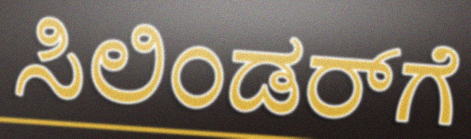
ಸಿಲಿಂಡರ್‌ಗೆ